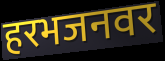
हरभजनवर